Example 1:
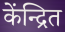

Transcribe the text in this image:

केंन्द्रित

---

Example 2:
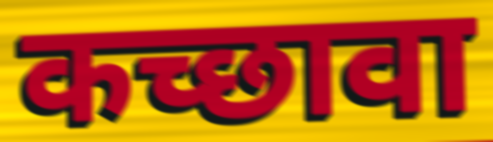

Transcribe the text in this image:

कच्छावा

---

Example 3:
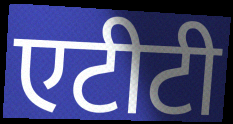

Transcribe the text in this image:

एटीटी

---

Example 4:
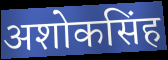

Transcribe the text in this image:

अशोकसिंह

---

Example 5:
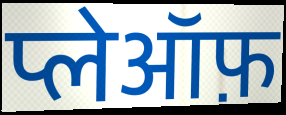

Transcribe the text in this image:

प्लेऑफ़